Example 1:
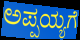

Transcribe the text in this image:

ಅಪ್ಪಯ್ಯಗೆ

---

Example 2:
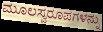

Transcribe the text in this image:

ಮೂಲಸ್ವರೂಪಗಳನ್ನು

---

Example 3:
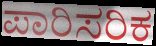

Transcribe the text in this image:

ಪಾರಿಸರಿಕ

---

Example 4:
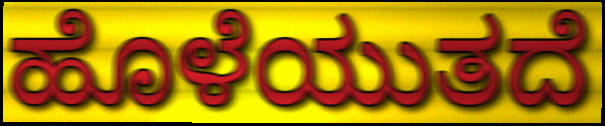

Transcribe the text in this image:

ಹೊಳೆಯುತದೆ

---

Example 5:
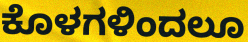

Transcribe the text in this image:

ಕೊಳಗಳಿಂದಲೂ